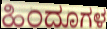
ಹಿಂದೂಗಳ